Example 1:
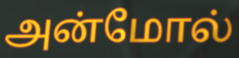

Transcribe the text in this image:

அன்மோல்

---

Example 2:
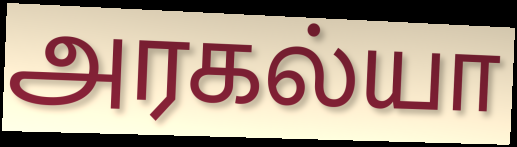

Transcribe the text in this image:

அரகல்யா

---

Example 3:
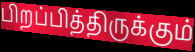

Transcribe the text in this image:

பிறப்பித்திருக்கும்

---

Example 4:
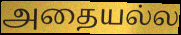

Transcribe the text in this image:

அதையல்ல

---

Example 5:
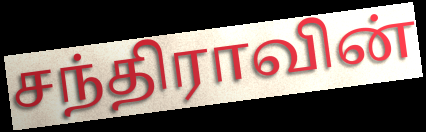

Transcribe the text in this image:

சந்திராவின்